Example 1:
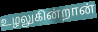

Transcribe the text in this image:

உழலுகின்றான்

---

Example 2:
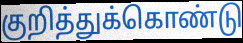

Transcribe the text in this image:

குறித்துக்கொண்டு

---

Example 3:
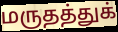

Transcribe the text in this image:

மருதத்துக்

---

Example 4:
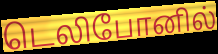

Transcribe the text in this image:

டெலிபோனில்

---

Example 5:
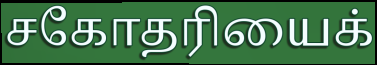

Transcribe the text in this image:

சகோதரியைக்